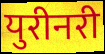
युरीनरी